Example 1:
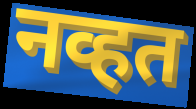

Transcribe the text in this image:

नव्हत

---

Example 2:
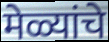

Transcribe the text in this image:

मेळ्यांचे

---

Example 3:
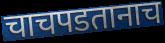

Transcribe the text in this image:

चाचपडतानाच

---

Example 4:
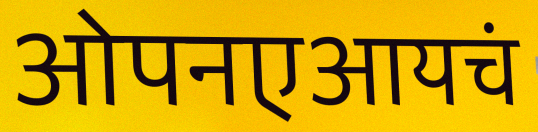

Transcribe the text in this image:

ओपनएआयचं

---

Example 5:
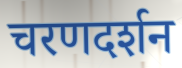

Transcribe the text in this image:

चरणदर्शन